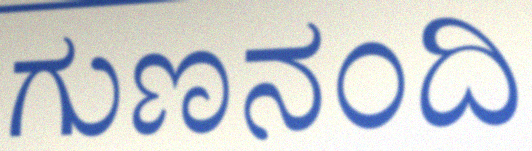
ಗುಣನಂದಿ